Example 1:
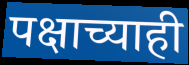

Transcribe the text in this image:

पक्षाच्याही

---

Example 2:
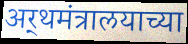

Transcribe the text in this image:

अर्थमंत्रालयाच्या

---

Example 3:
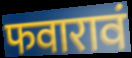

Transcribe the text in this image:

फवारावं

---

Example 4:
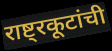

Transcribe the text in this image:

राष्ट्रकूटांची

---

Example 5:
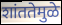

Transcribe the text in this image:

शांततेमुळे